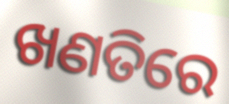
ଖଣତିରେ